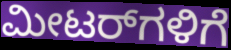
ಮೀಟರ್‌ಗಳಿಗೆ